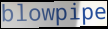
blowpipe